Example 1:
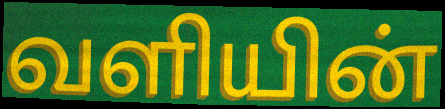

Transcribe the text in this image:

வளியின்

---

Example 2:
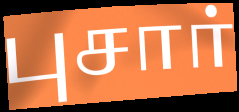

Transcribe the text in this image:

புசார்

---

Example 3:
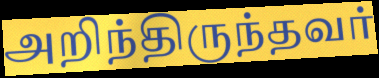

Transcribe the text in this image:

அறிந்திருந்தவர்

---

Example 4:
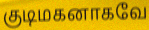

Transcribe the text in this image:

குடிமகனாகவே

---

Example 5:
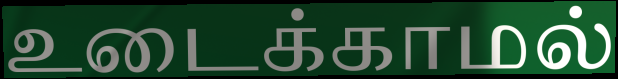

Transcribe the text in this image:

உடைக்காமல்